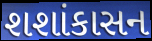
શશાંકાસન